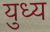
युध्य